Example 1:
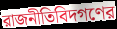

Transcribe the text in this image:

রাজনীতিবিদগণের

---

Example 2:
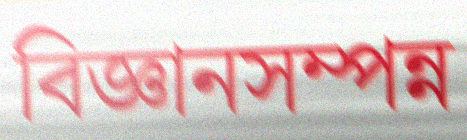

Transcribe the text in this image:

বিজ্ঞানসম্পন্ন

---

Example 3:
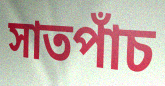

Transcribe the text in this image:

সাতপাঁচ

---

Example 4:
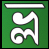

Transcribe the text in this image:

ভ্ল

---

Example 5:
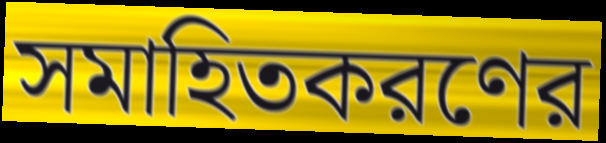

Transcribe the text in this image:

সমাহিতকরণের